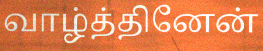
வாழ்த்தினேன்